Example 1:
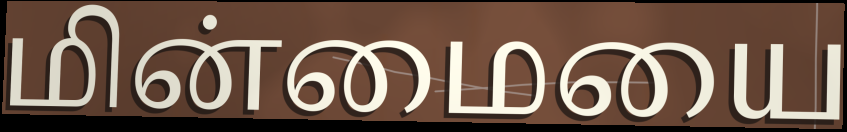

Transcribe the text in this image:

மின்மையை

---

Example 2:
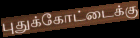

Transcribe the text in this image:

புதுக்கோட்டைக்கு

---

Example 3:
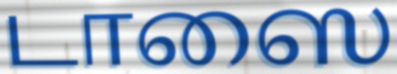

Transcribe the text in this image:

டாஸை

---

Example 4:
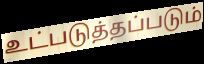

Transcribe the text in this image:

உட்படுத்தப்படும்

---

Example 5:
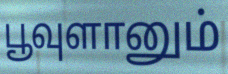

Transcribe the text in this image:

பூவுளானும்